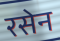
रसेन